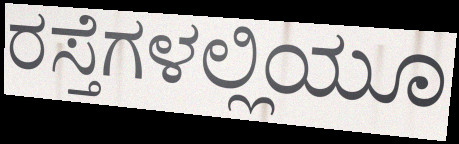
ರಸ್ತೆಗಳಲ್ಲಿಯೂ